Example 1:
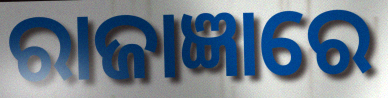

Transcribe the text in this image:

ରାଜାଜ୍ଞାରେ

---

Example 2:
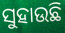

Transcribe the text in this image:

ସୁହାଉଛି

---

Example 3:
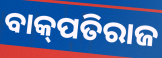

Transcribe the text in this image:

ବାକ୍‌ପତିରାଜ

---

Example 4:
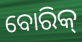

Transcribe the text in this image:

ବୋରିକ୍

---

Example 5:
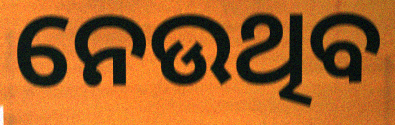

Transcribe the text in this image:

ନେଉଥିବ